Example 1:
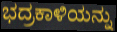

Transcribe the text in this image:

ಭದ್ರಕಾಳಿಯನ್ನು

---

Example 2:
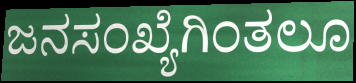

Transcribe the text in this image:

ಜನಸಂಖ್ಯೆಗಿಂತಲೂ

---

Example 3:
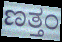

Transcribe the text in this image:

ಣತ್ತಂ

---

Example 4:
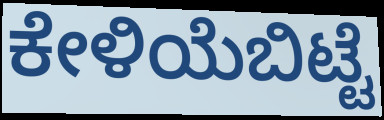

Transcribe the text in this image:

ಕೇಳಿಯೆಬಿಟ್ಟೆ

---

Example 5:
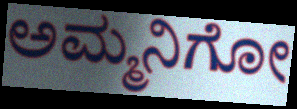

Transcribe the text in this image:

ಅಮ್ಮನಿಗೋ